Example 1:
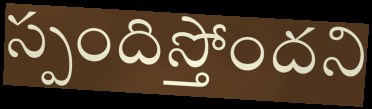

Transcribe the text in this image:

స్పందిస్తోందని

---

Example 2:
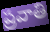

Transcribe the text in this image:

ప్రవాతి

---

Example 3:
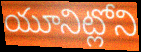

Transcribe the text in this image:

యూనిట్లోని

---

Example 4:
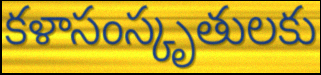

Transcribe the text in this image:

కళాసంస్కృతులకు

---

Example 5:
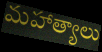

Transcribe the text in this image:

మహాత్యాలు